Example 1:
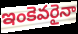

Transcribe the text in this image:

ఇంకెవరైనా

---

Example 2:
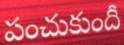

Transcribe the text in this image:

పంచుకుందీ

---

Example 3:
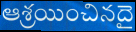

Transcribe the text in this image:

ఆశ్రయించినదై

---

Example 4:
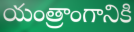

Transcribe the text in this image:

యంత్రాంగానికి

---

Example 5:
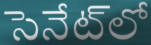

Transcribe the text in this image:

సెనేట్‌లో